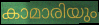
കാമാരിയും